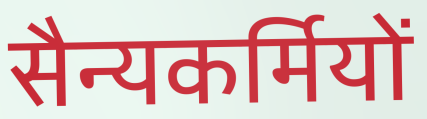
सैन्यकर्मियों